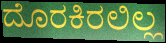
ದೊರಕಿರಲಿಲ್ಲ